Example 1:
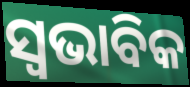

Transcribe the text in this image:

ସ୍ୱଭାବିକ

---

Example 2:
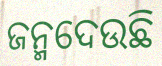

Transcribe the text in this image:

ଜନ୍ମଦେଉଛି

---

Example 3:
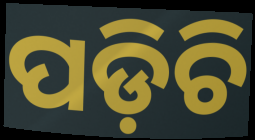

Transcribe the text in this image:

ପଡ଼ିଚି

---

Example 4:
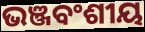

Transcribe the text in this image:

ଭଞ୍ଜବଂଶୀୟ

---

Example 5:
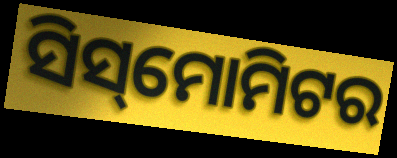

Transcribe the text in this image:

ସିସ୍‌ମୋମିଟର